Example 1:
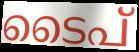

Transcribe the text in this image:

ടൈപ്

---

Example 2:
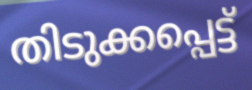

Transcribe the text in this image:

തിടുക്കപ്പെട്ട്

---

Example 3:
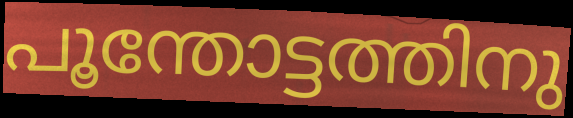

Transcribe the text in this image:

പൂന്തോട്ടത്തിനു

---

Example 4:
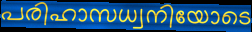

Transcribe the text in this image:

പരിഹാസധ്വനിയോടെ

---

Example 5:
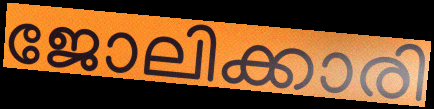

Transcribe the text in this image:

ജോലിക്കാരി